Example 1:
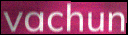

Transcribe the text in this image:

vachun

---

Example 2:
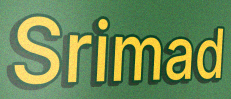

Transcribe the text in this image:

Srimad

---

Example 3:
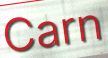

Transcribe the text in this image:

Carn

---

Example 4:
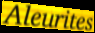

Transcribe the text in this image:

Aleurites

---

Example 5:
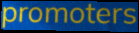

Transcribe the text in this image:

promoters